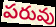
పరువు